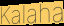
Kalaha